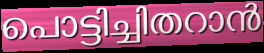
പൊട്ടിച്ചിതറാൻ